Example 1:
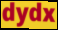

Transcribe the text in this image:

dydx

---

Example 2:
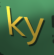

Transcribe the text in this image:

ky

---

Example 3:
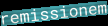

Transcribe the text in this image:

remissionem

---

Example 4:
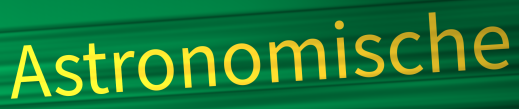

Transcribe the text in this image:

Astronomische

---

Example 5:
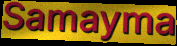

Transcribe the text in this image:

Samayma